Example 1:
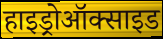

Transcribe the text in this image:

हाइड्रोऑक्साइड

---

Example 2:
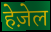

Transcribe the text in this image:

हेज़ेल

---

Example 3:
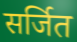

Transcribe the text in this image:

सर्जित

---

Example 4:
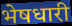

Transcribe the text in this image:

भेषधारी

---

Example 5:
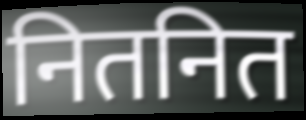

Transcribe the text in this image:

नितनित